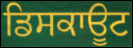
ਡਿਸਕਾਊਟ